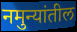
नमुन्यांतील